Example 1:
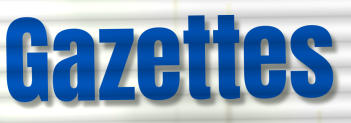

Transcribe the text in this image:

Gazettes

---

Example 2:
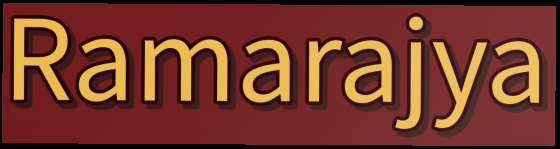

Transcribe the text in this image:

Ramarajya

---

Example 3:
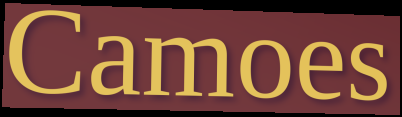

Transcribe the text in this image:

Camoes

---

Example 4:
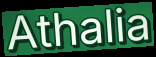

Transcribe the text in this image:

Athalia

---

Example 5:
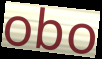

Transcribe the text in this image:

obo